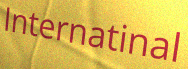
Internatinal